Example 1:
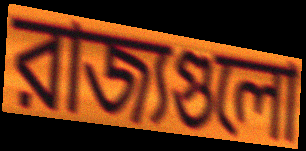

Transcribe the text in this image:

রাজ্যগুলো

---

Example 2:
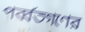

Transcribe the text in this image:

পর্ব্বতগণের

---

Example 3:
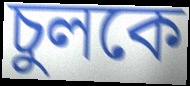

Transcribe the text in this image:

চুলকে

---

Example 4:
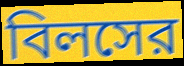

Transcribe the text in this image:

বিলসের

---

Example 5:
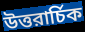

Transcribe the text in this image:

উত্তরার্চিক